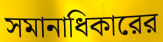
সমানাধিকারের